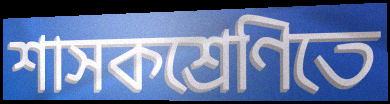
শাসকশ্রেণিতে